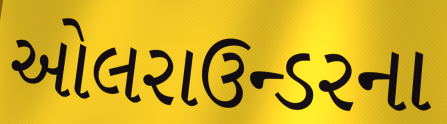
ઓલરાઉન્ડરના